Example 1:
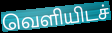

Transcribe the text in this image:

வெளியிடச்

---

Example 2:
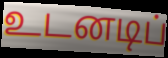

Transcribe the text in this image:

உடனடிப்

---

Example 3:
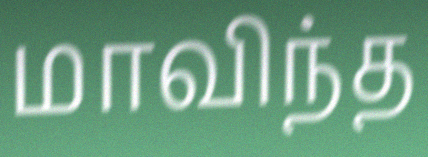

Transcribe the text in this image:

மாவிந்த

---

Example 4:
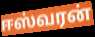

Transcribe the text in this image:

ஈஸ்வரன்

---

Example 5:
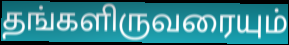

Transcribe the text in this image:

தங்களிருவரையும்